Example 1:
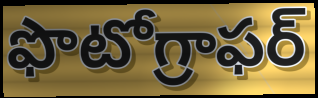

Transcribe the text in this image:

ఫొటోగ్రాఫర్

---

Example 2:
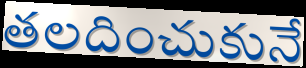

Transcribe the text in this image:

తలదించుకునే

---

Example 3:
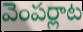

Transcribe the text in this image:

వెంపర్లాట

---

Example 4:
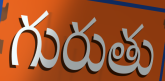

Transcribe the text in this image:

గురుతు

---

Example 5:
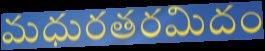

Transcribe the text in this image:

మధురతరమిదం